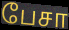
பேசா